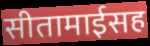
सीतामाईसह